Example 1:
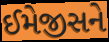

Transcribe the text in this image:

ઈમેજીસને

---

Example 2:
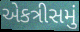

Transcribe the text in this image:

એકત્રીસમું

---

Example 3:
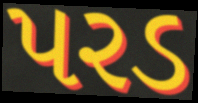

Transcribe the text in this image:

પરડ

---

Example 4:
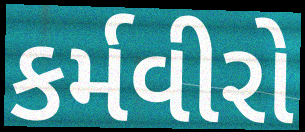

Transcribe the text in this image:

કર્મવીરો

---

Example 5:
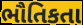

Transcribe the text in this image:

ભૌતિકતા